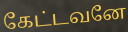
கேட்டவனே